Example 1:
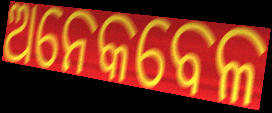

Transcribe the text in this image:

ଅନେକବେଳ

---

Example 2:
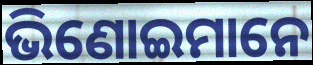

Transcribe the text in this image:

ଭିଣୋଇମାନେ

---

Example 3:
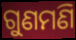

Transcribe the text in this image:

ଗୁଣମଣି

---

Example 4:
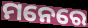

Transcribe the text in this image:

ମନେରେ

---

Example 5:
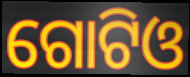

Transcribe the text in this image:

ଗୋଟିଓ